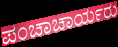
ಪಂಚಾಚಾರ್ಯರು